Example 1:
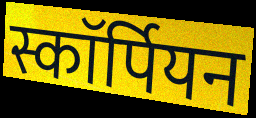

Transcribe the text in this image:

स्कॉर्पियन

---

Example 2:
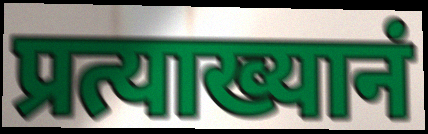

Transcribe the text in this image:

प्रत्याख्यानं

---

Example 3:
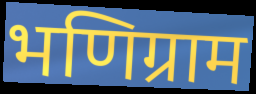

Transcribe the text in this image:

भणिग्राम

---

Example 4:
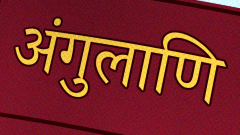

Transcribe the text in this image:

अंगुलाणि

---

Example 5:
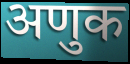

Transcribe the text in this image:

अणुक